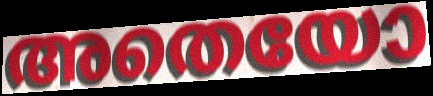
അതെയോ